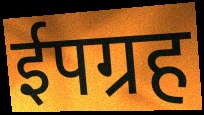
ईपग्रह